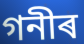
গনীৰ